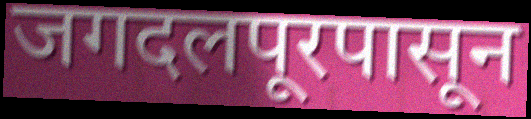
जगदलपूरपासून